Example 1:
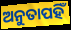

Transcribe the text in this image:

ଅନୁତାପହିଁ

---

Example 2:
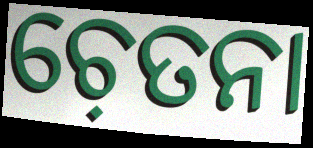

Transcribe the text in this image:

ଚ଼େତନା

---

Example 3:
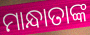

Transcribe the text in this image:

ମାନ୍ଧାତାଙ୍କ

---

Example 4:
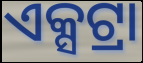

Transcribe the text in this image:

ଏକ୍ସଟ୍ରା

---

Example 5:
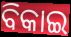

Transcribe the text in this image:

ବିକାଇ